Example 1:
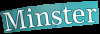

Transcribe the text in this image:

Minster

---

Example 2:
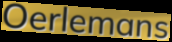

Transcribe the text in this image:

Oerlemans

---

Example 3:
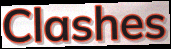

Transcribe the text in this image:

Clashes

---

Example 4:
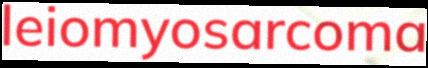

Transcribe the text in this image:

leiomyosarcoma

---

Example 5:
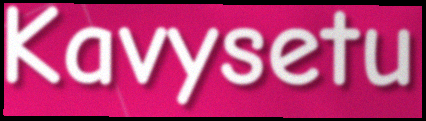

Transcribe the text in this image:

Kavysetu